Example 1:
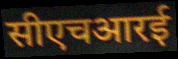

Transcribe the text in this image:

सीएचआरई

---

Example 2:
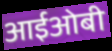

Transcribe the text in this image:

आईओबी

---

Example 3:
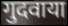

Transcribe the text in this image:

गुदवाया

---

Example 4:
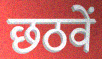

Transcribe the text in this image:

छठवें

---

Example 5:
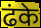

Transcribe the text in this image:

ढंके